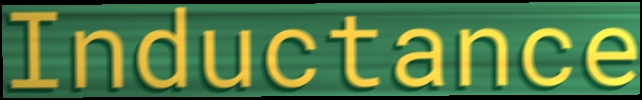
Inductance